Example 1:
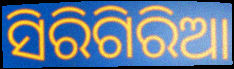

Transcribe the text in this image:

ସିରିଗିରିଆ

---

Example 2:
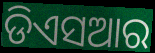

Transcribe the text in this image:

ଡିଏସଆର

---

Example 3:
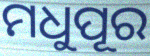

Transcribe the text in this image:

ମଧୁପୂର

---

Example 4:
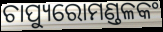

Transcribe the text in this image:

ଚାପ୍ୟୁରୋମଣ୍ଡଳକଂ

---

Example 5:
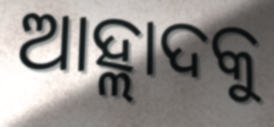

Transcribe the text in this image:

ଆହ୍ଲାଦକୁ